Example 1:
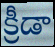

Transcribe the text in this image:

క్రీడా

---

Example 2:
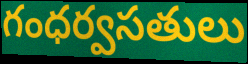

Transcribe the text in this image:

గంధర్వసతులు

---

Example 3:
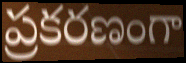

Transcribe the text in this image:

ప్రకరణంగా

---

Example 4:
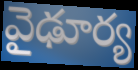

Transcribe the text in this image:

వైఢూర్య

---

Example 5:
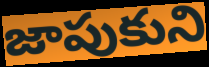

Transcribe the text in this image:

జాపుకుని